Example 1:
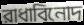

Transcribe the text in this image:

রাধাবিনোদ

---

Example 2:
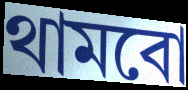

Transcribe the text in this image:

থামবো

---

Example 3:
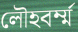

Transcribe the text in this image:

লৌহবর্ম্ম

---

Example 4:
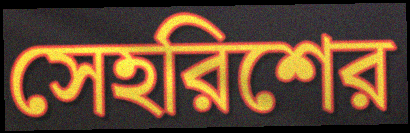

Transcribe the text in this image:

সেহরিশের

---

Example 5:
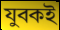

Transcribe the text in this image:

যুবকই